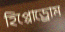
হিপ্পোড্রোম